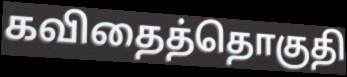
கவிதைத்தொகுதி